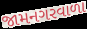
જામનગરવાળા